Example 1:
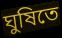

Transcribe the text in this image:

ঘুষিতে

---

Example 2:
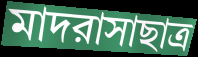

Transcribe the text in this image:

মাদরাসাছাত্র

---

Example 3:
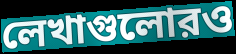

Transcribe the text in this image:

লেখাগুলোরও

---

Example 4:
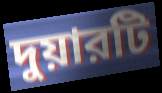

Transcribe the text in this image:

দুয়ারটি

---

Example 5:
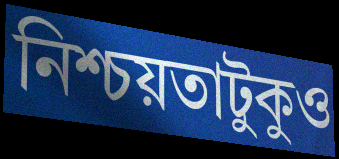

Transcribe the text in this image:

নিশ্চয়তাটুকুও